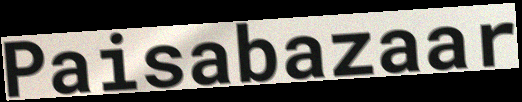
Paisabazaar